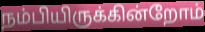
நம்பியிருக்கின்றோம்